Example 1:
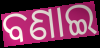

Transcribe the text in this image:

ବଣାଇ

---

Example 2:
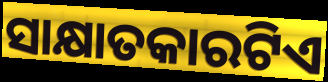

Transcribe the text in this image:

ସାକ୍ଷାତକାରଟିଏ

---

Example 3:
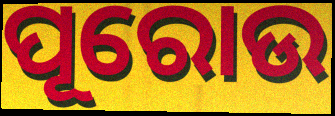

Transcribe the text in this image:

ପୂରୋଉ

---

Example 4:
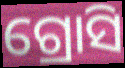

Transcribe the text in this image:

ଗ୍ରୋସି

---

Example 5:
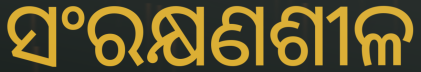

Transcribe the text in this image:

ସଂରକ୍ଷଣଶୀଳ